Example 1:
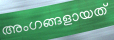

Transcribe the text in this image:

അംഗങ്ങളായത്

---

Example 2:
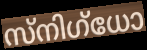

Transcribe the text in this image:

സ്നിഗ്ധോ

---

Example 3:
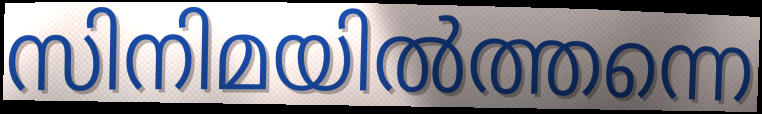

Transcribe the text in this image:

സിനിമയിൽത്തന്നെ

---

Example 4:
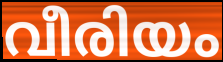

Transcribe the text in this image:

വീരിയം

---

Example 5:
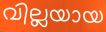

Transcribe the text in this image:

വില്ലയായ